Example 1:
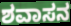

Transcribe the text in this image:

ಶವಾಸನ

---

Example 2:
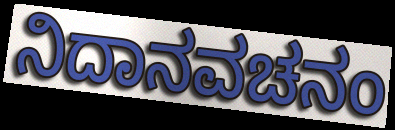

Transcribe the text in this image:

ನಿದಾನವಚನಂ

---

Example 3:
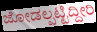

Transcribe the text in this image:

ಜೋಡಲ್ಪಟ್ಟಿದ್ದೀರಿ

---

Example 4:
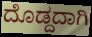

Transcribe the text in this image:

ದೊಡ್ದದಾಗಿ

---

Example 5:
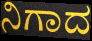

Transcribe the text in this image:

ನಿಗಾದ